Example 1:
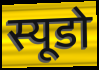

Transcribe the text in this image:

स्यूडो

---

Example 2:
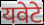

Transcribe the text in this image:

यवेटे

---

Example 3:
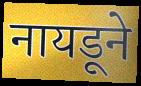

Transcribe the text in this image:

नायडूने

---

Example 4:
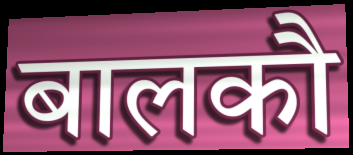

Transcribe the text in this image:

बालकौ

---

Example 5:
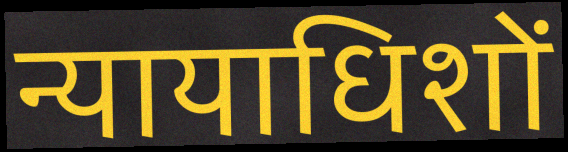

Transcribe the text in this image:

न्यायाधिशों